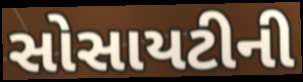
સોસાયટીની